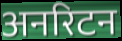
अनरिटन